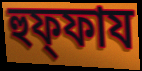
হুফ্ফায